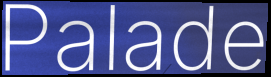
Palade